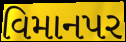
વિમાનપર